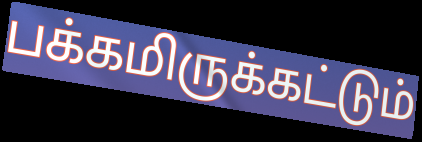
பக்கமிருக்கட்டும்